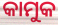
କାମୁକ